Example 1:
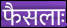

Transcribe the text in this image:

फैसलाः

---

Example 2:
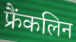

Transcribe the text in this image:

फ्रैंकलिन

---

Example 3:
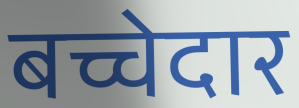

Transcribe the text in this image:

बच्चेदार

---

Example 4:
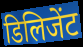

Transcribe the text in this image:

डिलिजेंट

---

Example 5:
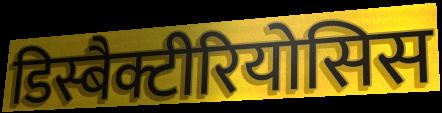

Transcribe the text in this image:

डिस्बैक्टीरियोसिस